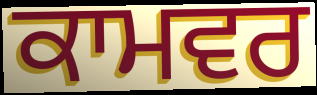
ਕਾਮਵਰ